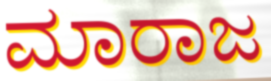
ಮಾರಾಜ